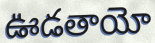
ఊడతాయో